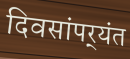
दिवसांपर्यंत